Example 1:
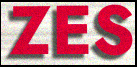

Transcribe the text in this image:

ZES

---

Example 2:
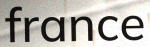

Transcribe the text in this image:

france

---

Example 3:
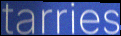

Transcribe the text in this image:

tarries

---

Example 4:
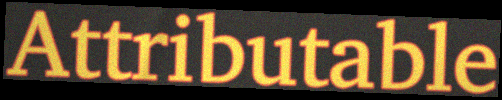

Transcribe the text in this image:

Attributable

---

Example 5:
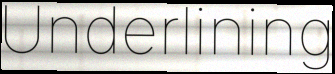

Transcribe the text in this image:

Underlining